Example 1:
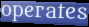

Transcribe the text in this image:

operates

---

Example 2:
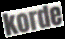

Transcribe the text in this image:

korde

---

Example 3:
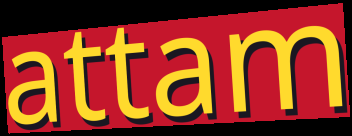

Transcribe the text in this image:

attam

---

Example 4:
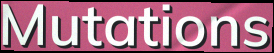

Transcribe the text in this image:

Mutations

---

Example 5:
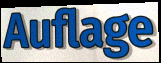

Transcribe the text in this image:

Auflage